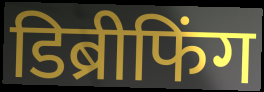
डिब्रीफिंग